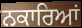
ਨਕਾਰਿਆਂ